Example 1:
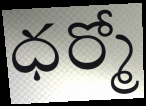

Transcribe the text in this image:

ధర్మో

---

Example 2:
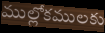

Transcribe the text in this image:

ముల్లోకములకు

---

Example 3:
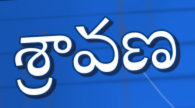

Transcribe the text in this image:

శ్రావణ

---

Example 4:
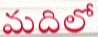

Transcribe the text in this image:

మదిలో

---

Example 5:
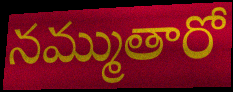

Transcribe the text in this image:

నమ్ముతారో